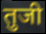
तुजी